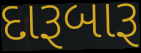
દારૂબારૂ